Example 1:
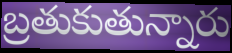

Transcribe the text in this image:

బ్రతుకుతున్నారు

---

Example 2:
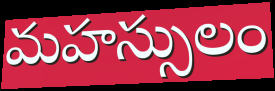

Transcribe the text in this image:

మహస్సులం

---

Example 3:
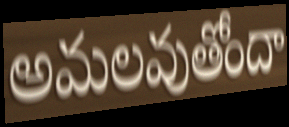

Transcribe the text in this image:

అమలవుతోందా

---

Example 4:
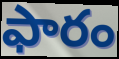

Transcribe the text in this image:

ఫారం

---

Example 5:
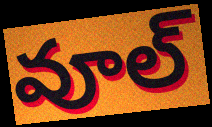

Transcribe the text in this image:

వూల్